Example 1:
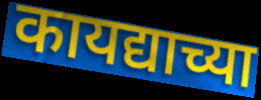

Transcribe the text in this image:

कायद्याच्या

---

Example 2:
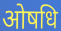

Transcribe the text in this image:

ओषधि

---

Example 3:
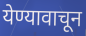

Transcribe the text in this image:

येण्यावाचून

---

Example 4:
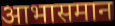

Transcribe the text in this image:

आभासमान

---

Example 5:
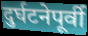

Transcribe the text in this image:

दुर्घटनेपूर्वी